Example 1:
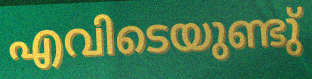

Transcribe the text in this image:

എവിടെയുണ്ടു്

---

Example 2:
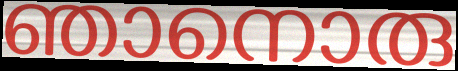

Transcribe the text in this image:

ഞാനൊരു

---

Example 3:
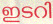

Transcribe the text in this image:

ഇടറി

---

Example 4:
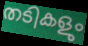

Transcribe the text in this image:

തടികളും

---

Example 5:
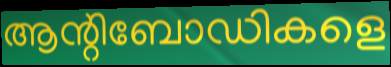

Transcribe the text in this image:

ആന്റിബോഡികളെ